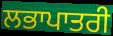
ਲਭਾਪਾਤਰੀ